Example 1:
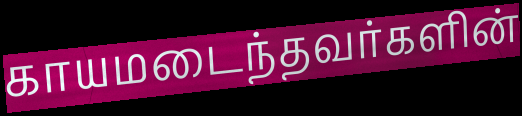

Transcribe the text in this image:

காயமடைந்தவர்களின்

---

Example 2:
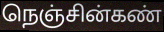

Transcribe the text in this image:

நெஞ்சின்கண்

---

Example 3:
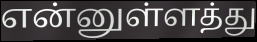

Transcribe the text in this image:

என்னுள்ளத்து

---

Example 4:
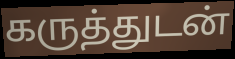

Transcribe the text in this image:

கருத்துடன்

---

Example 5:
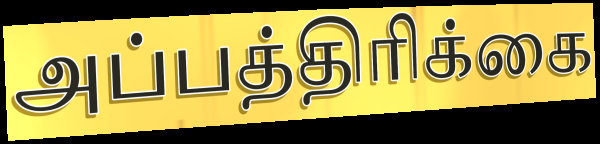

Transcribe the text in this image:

அப்பத்திரிக்கை